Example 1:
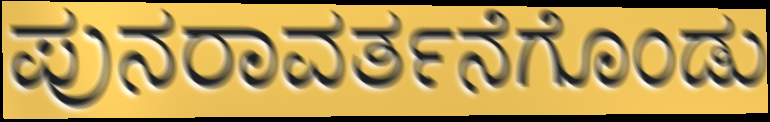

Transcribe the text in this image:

ಪುನರಾವರ್ತನೆಗೊಂಡು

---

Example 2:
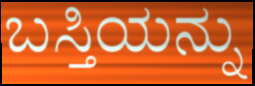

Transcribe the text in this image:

ಬಸ್ತಿಯನ್ನು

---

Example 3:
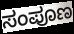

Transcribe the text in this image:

ಸಂಪೂಣ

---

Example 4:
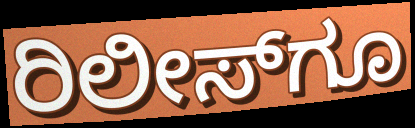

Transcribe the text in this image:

ರಿಲೀಸ್‌ಗೂ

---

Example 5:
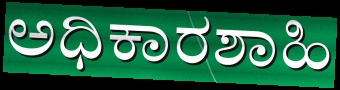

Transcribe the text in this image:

ಅಧಿಕಾರಶಾಹಿ